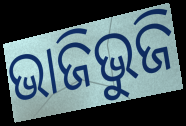
ଭାଜିଭୁଜି